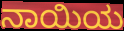
ನಾಯಿಯ